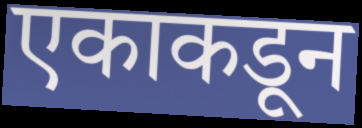
एकाकडून